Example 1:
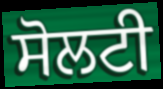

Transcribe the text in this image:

ਸੋਲਟੀ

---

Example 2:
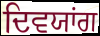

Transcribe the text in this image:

ਦਿਵਯਾਂਗ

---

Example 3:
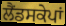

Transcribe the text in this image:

ਲੈਂਡਸਕੇਪਾਂ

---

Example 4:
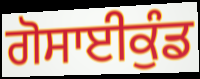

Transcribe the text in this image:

ਗੋਸਾਈਕੁੰਡ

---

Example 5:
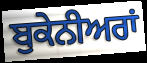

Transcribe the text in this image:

ਬੁਕੇਨੀਅਰਾਂ